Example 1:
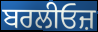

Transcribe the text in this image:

ਬਰਲੀਓਜ਼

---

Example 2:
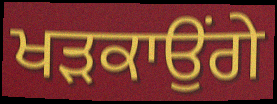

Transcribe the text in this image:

ਖੜਕਾਉਂਗੇ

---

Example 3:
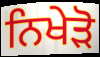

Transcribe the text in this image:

ਨਿਖੇੜੋ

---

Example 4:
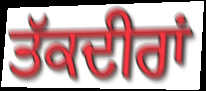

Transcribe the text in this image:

ਤੱਕਦੀਰਾਂ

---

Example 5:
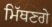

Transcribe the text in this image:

ਮਿੱਥਣਗੇ